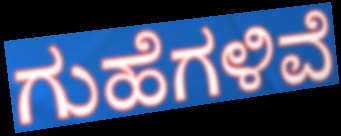
ಗುಹೆಗಳಿವೆ